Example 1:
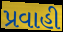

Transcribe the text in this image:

પ્રવાહી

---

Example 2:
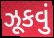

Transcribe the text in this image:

ઝૂકવું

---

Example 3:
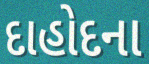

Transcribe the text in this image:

દાહોદના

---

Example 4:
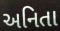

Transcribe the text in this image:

અનિતા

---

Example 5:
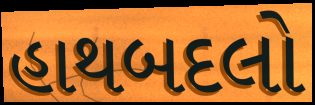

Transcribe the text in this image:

હાથબદલો